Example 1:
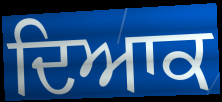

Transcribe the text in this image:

ਦਿਆਕ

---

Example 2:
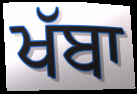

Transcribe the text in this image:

ਖੱਬਾ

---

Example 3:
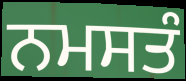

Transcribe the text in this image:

ਨਮਸਤੰ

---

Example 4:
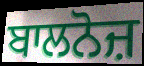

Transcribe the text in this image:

ਬਾਲਨੋਜ਼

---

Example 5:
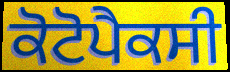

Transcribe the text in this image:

ਕੋਟੋਪੈਕਸੀ